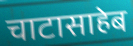
चाटासाहेब